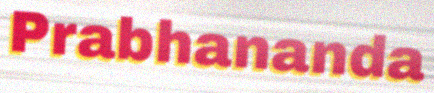
Prabhananda